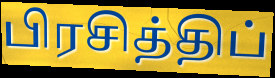
பிரசித்திப்